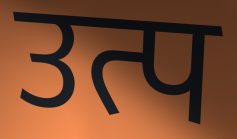
उत्प